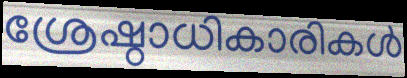
ശ്രേഷ്ഠാധികാരികൾ